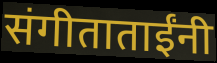
संगीताताईंनी